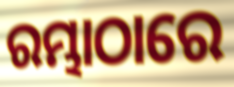
ରମ୍ଭାଠାରେ